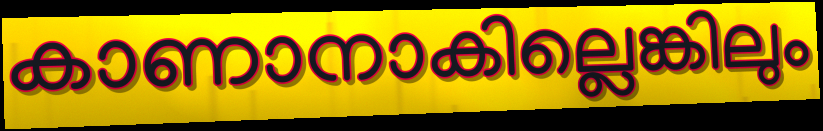
കാണാനാകില്ലെങ്കിലും